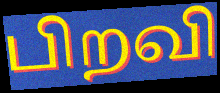
பிறவி